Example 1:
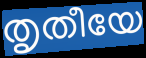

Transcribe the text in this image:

തൃതീയേ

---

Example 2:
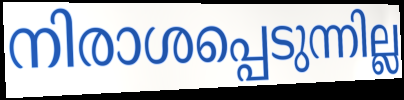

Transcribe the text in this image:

നിരാശപ്പെടുന്നില്ല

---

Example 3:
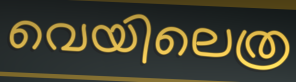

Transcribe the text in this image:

വെയിലെത്ര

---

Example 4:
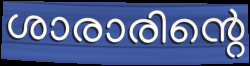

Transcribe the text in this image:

ശാരാരിന്റെ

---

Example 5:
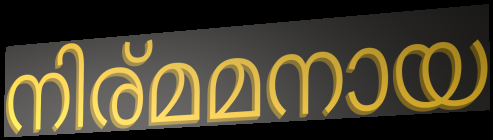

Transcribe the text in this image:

നിര്മമനായ